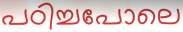
പഠിച്ചപോലെ